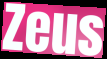
Zeus